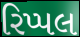
રિપ્પલ